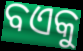
ବଏକୁ